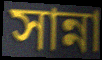
সান্না